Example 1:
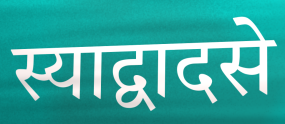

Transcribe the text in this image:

स्याद्वादसे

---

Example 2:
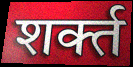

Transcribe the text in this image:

शर्क्त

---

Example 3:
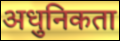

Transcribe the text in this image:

अधुनिकता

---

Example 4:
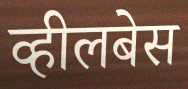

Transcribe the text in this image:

व्हीलबेस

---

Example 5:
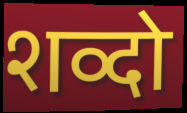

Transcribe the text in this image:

शव्दो